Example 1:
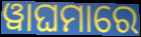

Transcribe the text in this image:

ୱାଘମାରେ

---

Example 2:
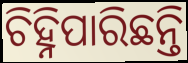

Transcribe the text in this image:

ଚିହ୍ନିପାରିଛନ୍ତି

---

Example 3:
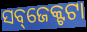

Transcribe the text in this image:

ସବ୍‌ଜେକ୍ଟଟା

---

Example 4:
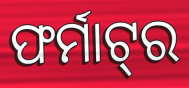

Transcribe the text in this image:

ଫର୍ମାଟ୍‌ର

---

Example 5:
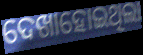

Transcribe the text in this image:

ଦେଖାହୋଇଥିଲା